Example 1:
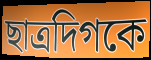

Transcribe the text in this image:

ছাত্রদিগকে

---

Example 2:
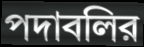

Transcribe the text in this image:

পদাবলির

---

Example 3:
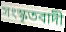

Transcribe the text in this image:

সংস্কৃতবাদী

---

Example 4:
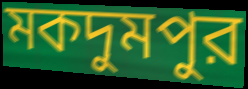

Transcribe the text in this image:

মকদুমপুর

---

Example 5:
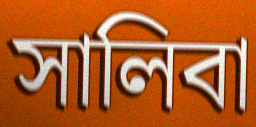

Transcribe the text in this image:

সালিবা